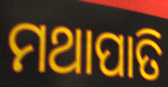
ମଥାପାତି